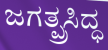
ಜಗತ್ಪ್ರಸಿದ್ಧ